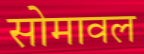
सोमावल